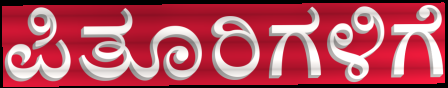
ಪಿತೂರಿಗಳಿಗೆ